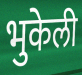
भुकेली